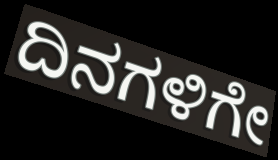
ದಿನಗಳಿಗೇ